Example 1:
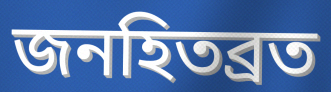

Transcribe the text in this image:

জনহিতব্রত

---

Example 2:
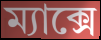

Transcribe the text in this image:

ম্যাক্সে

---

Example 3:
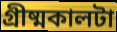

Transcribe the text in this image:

গ্রীষ্মকালটা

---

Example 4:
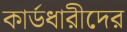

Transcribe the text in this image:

কার্ডধারীদের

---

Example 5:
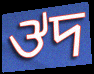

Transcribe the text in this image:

ঔদ